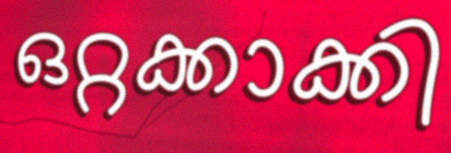
ഒറ്റക്കാക്കി